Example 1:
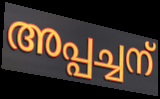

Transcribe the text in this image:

അപ്പച്ചന്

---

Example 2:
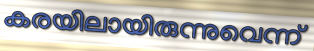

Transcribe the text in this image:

കരയിലായിരുന്നുവെന്ന്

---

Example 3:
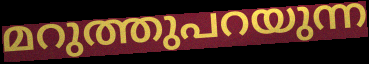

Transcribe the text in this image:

മറുത്തുപറയുന്ന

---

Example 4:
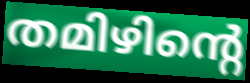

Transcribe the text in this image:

തമിഴിന്റെ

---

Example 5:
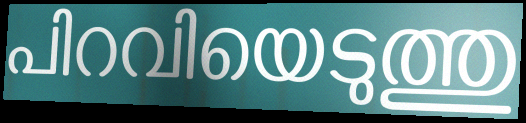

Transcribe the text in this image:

പിറവിയെടുത്തു